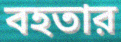
বহতার